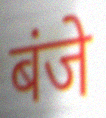
बंजे